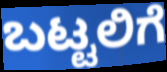
ಬಟ್ಟಲಿಗೆ